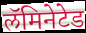
लॅमिनेटेड